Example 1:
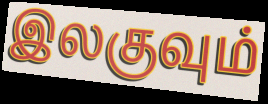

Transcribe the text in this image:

இலகுவும்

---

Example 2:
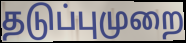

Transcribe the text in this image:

தடுப்புமுறை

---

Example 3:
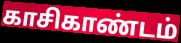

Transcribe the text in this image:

காசிகாண்டம்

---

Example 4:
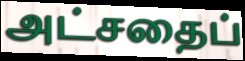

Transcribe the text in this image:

அட்சதைப்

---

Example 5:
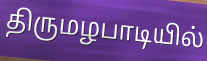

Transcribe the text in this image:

திருமழபாடியில்